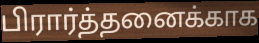
பிரார்த்தனைக்காக